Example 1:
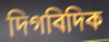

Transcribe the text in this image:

দিগবিদিক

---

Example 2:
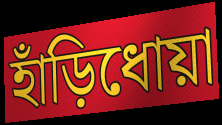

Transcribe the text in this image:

হাঁড়িধোয়া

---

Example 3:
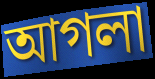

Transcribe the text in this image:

আগলা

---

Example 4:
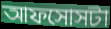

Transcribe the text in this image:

আফসোসটা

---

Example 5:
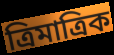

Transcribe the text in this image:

ত্রিমাত্রিক